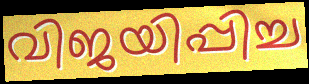
വിജയിപ്പിച്ച